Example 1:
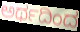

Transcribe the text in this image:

ಅರ್ಥದಿಂದ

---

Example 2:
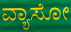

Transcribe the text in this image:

ವ್ಯಾಸೋ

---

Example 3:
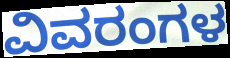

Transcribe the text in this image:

ವಿವರಂಗಳ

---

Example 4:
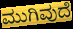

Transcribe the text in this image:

ಮುಗಿವುದೆ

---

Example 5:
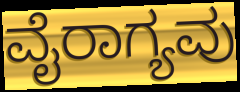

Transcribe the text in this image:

ವೈರಾಗ್ಯವು